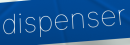
dispenser